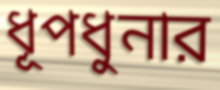
ধূপধুনার